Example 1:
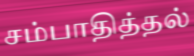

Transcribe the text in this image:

சம்பாதித்தல்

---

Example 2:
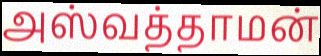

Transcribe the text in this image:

அஸ்வத்தாமன்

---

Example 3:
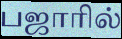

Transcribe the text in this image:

பஜாரில்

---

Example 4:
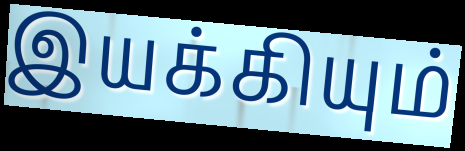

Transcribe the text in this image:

இயக்கியும்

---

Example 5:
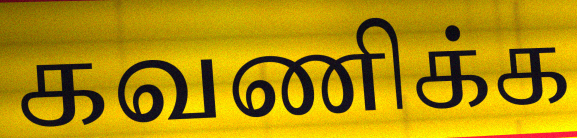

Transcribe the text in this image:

கவணிக்க